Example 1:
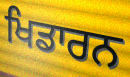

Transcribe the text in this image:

ਖਿਡਾਰਨ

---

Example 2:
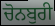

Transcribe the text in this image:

ਚੋਨਬੁਰੀ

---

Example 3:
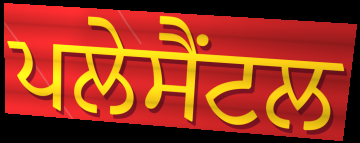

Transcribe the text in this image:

ਪਲੇਸੈਂਟਲ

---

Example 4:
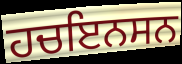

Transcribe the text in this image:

ਹਚਇਨਸਨ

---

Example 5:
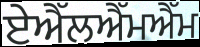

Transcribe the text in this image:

ਏਐੱਲਐੱਮਐੱਮ